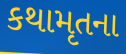
કથામૃતના